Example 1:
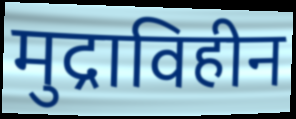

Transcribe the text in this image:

मुद्राविहीन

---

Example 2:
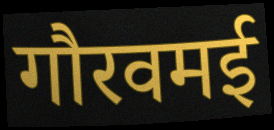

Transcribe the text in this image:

गौरवमई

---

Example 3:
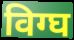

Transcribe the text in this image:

विग्घ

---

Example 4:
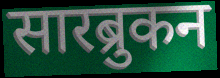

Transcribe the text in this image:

सारब्रुकन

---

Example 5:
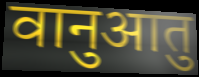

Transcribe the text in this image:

वानुआतु